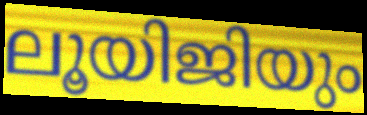
ലൂയിജിയും